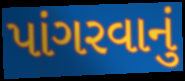
પાંગરવાનું